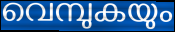
വെമ്പുകയും